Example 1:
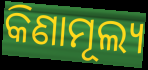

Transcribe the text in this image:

କିଣାମୂଲ୍ୟ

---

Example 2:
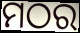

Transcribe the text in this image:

ମଠର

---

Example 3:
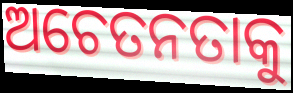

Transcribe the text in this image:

ଅଚେତନତାକୁ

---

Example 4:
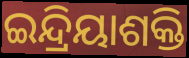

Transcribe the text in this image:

ଇନ୍ଦ୍ରିୟାଶକ୍ତି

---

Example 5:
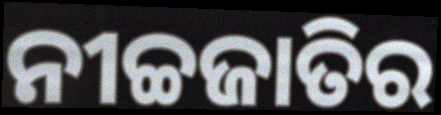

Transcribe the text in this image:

ନୀଚ୍ଚଜାତିର